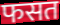
फसत